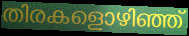
തിരകളൊഴിഞ്ഞ്